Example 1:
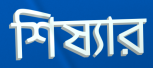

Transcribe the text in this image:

শিষ্যার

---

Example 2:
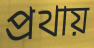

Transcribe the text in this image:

প্রথায়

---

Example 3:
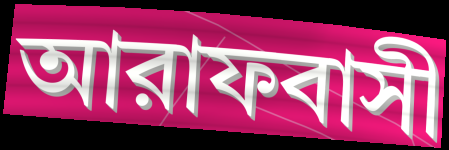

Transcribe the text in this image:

আরাফবাসী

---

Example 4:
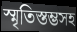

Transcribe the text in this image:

স্মৃতিস্তম্ভসহ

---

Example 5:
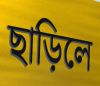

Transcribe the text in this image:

ছাড়িলে